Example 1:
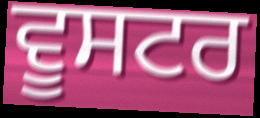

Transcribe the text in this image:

ਵੂਸਟਰ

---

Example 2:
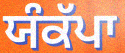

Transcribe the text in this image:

ਯੰਕੱਪਾ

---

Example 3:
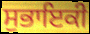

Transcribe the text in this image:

ਸੁਭਾਇਕੀ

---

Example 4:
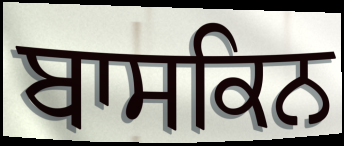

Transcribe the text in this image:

ਬਾਸਕਿਨ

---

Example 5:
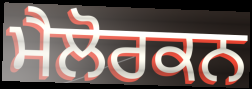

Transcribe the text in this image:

ਮੈਲੋਰਕਨ